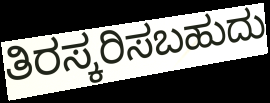
ತಿರಸ್ಕರಿಸಬಹುದು